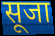
सूजा